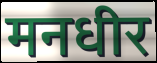
मनधीर